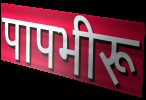
पापभीरू